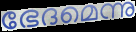
ഭേദമെന്നു